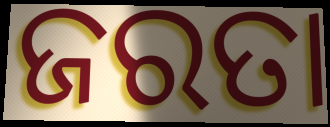
ଜରତା